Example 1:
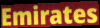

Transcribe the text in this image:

Emirates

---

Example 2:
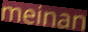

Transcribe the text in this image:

meinan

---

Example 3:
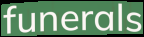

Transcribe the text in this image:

funerals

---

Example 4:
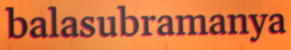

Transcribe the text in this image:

balasubramanya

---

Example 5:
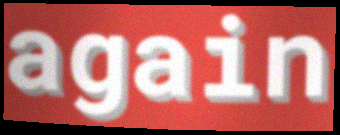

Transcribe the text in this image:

again